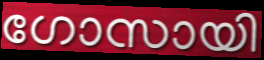
ഗോസായി